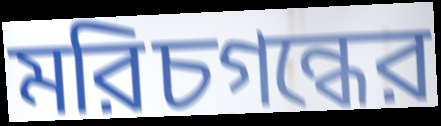
মরিচগন্ধের